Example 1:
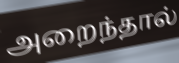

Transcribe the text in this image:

அறைந்தால்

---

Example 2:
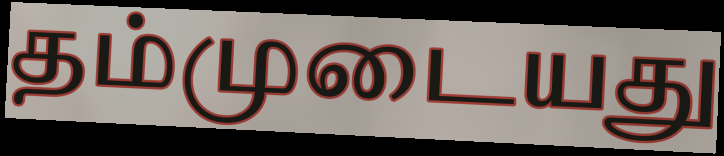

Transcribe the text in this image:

தம்முடையது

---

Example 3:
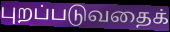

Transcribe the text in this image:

புறப்படுவதைக்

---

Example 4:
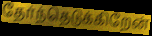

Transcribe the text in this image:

தேர்ந்தெடுக்கிறேன்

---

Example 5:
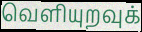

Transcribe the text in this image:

வெளியுறவுக்